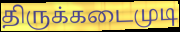
திருக்கடைமுடி